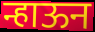
न्हाऊन